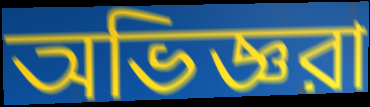
অভিজ্ঞরা